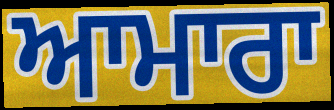
ਆਮਾਰਾ